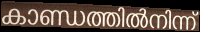
കാണ്ഡത്തിൽനിന്ന്